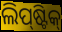
ଲିପ୍‌ଷ୍ଟିକ୍